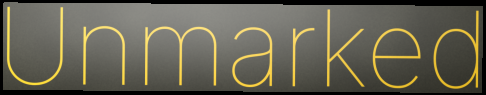
Unmarked